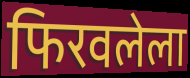
फिरवलेला